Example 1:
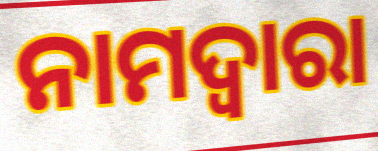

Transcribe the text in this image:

ନାମଦ୍ଵାରା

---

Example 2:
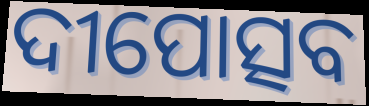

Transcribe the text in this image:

ଦୀପୋତ୍ସବ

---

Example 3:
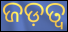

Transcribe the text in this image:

ଜଡ଼ତ୍ଵ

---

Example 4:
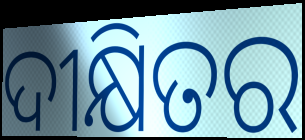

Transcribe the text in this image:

ଦୀକ୍ଷିତର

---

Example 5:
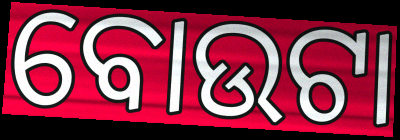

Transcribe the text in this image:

ବୋଉଟା